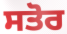
ਸਤੋਰ